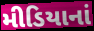
મીડિયાનાં